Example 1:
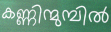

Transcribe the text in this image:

കണ്ണിന്മുമ്പിൽ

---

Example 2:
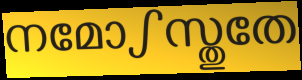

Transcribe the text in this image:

നമോഽസ്തുതേ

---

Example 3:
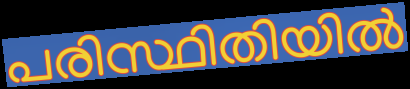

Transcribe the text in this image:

പരിസ്ഥിതിയിൽ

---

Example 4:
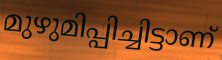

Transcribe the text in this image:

മുഴുമിപ്പിച്ചിട്ടാണ്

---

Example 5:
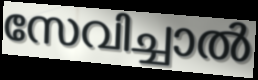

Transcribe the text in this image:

സേവിച്ചാൽ